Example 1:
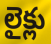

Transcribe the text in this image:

లైక్లు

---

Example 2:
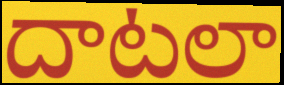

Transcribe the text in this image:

దాటలా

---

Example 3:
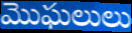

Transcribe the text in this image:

మొఘలులు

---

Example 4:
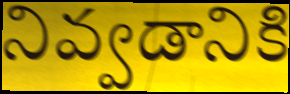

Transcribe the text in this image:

నివ్వడానికి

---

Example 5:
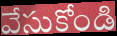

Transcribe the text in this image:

వేసుకోండి